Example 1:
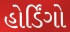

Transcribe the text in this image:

હોર્ડિંગો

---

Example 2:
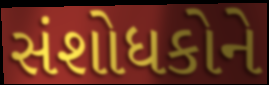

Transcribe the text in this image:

સંશોધકોને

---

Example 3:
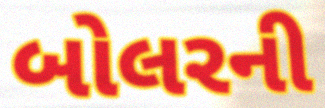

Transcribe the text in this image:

બોલરની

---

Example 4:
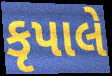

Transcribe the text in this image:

કૃપાલે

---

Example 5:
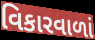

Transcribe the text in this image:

વિકારવાળાં